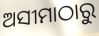
ଅସୀମାଠାରୁ